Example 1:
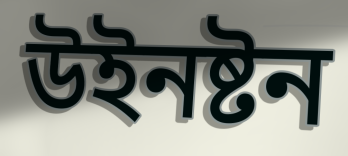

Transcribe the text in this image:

উইনষ্টন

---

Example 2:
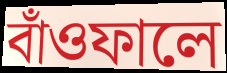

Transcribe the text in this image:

বাঁওফালে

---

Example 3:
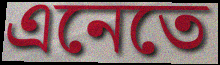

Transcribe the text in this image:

এনেতে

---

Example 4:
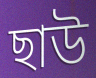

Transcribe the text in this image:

ছাউ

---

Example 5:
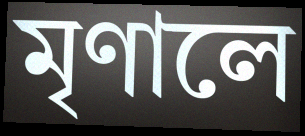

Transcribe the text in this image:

মৃণালে